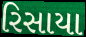
રિસાયા